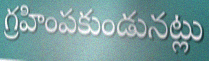
గ్రహింపకుండునట్లు